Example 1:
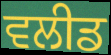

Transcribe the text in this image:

ਵਲੀਡ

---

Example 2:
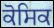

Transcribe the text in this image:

ਕੋਸਿਕ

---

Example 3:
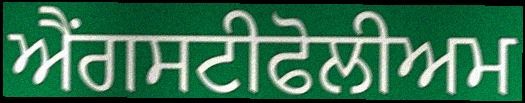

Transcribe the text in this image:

ਐਂਗਸਟੀਫੋਲੀਅਮ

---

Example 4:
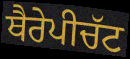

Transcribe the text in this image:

ਥੈਰੇਪੀਚੱਟ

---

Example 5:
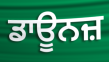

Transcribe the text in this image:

ਡਾਊਨਜ਼